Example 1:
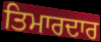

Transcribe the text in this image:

ਤਿਮਾਰਦਾਰ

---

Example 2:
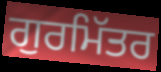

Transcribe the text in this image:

ਗੁਰਮਿੱਤਰ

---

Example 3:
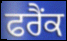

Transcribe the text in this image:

ਫਰੈਂਕ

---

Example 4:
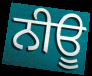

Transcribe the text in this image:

ਨੀਊ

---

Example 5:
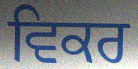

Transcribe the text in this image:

ਵਿਕਰ